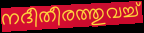
നദീതീരത്തുവച്ച്